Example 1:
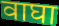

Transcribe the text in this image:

वाघा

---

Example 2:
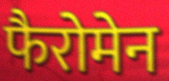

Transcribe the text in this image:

फैरोमेन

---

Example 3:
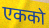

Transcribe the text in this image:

एकको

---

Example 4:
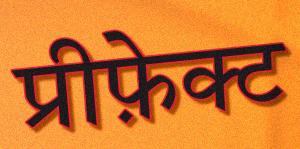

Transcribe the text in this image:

प्रीफ़ेक्ट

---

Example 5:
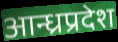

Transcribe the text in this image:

आन्ध्रप्रदेश